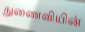
துணைவியின்